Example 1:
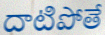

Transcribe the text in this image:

దాటిపోతే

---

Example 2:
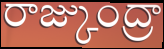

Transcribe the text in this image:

రాజ్కుంద్రా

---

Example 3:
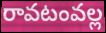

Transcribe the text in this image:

రావటంవల్ల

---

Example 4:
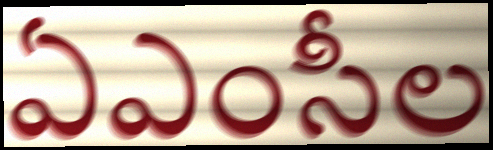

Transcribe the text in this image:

ఏఎంసీల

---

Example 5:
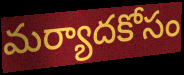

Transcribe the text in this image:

మర్యాదకోసం